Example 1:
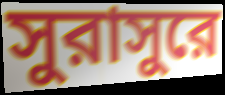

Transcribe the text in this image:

সুরাসুরে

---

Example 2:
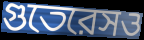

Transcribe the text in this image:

গুতেরেসও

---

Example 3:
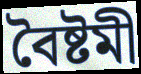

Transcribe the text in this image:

বৈষ্টমী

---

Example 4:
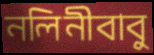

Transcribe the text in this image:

নলিনীবাবু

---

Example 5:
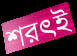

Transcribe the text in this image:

শরৎই